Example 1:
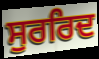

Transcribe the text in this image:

ਸੁਰਰਿਦ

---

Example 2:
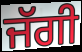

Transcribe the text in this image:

ਜੱਗੀ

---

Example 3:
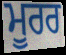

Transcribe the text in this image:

ਮੂਰਰ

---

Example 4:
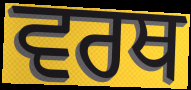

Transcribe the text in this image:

ਵਰਥ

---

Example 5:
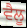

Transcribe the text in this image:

ਵੈਲੂ